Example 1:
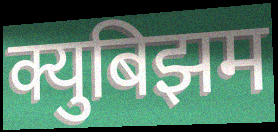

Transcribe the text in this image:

क्युबिझम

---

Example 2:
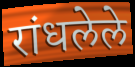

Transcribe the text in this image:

रांधलेले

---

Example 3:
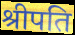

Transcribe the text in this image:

श्रीपति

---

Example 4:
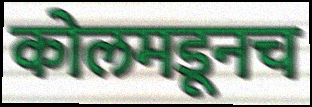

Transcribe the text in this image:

कोलमडूनच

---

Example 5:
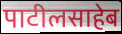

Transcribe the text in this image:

पाटीलसाहेब